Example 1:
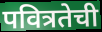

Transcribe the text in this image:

पवित्रतेची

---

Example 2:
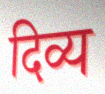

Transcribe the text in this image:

दिव्य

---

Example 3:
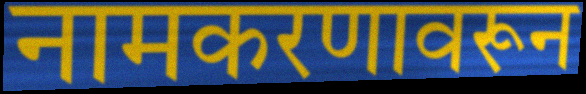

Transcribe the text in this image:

नामकरणावरून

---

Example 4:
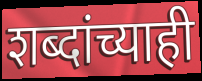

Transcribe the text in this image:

शब्दांच्याही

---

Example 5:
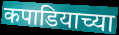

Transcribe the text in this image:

कपाडियाच्या